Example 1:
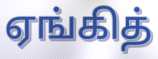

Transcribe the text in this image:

ஏங்கித்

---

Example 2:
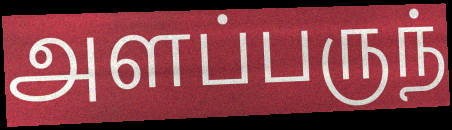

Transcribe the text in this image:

அளப்பருந்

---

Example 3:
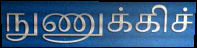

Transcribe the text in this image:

நுணுக்கிச்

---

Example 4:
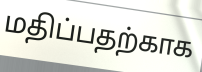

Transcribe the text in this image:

மதிப்பதற்காக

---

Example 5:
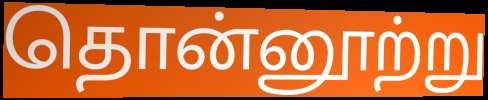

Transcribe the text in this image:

தொன்னூற்று